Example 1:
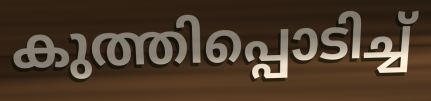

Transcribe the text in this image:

കുത്തിപ്പൊടിച്ച്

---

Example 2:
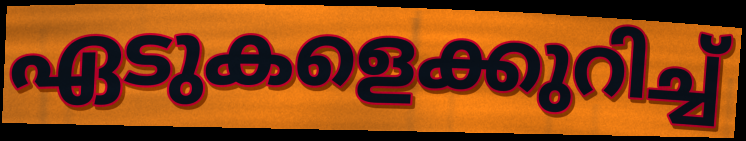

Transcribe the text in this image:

ഏടുകളെക്കുറിച്ച്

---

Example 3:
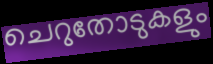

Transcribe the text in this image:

ചെറുതോടുകളും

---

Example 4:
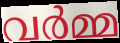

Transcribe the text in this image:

വർമ്മ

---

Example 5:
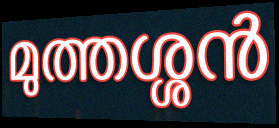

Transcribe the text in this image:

മുത്തശ്ശൻ